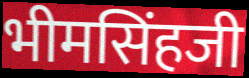
भीमसिंहजी